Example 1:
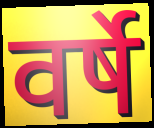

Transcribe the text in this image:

वर्षे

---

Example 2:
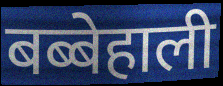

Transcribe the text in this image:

बब्बेहाली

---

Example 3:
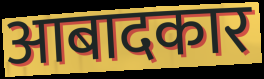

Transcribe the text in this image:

आबादकार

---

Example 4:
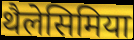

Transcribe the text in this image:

थैलेसिमिया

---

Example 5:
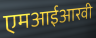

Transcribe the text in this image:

एमआईआरवी